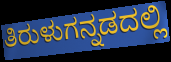
ತಿರುಳುಗನ್ನಡದಲ್ಲಿ